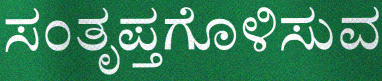
ಸಂತೃಪ್ತಗೊಳಿಸುವ